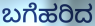
ಬಗೆಹರಿದ